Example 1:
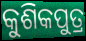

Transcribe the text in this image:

କୁଶିକପୁତ୍ର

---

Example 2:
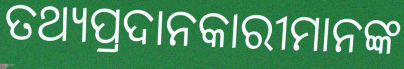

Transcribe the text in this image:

ତଥ୍ୟପ୍ରଦାନକାରୀମାନଙ୍କ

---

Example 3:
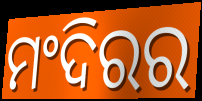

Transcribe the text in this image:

ମଂଦିରର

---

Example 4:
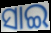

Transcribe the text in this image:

ସାଇ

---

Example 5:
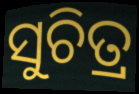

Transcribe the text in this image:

ସୁଚିତ୍ର